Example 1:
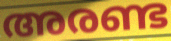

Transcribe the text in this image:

അരണ്ട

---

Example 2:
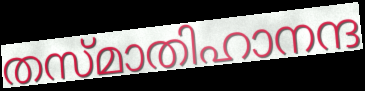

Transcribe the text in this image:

തസ്മാതിഹാനന്ദ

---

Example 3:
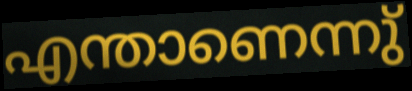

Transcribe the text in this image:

എന്താണെന്നു്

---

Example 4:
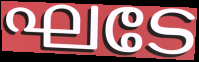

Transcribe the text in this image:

ഘടേ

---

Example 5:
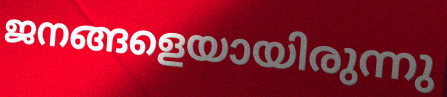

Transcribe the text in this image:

ജനങ്ങളെയായിരുന്നു